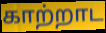
காற்றாட